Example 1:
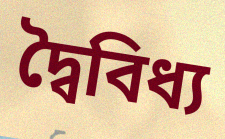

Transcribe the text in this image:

দ্বৈবিধ্য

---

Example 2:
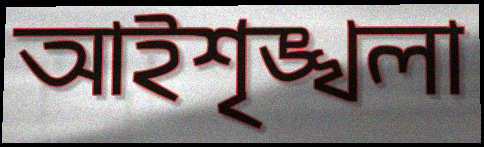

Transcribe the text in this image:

আইশৃঙ্খলা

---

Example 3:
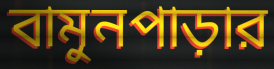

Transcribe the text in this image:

বামুনপাড়ার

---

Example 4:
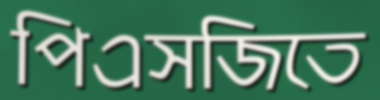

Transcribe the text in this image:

পিএসজিতে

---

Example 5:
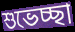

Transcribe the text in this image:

শুভেচ্ছা